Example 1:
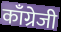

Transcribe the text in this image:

काँग्रेजी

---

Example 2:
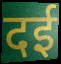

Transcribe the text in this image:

दई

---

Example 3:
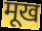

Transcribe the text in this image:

मूख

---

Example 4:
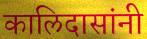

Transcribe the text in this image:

कालिदासांनी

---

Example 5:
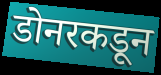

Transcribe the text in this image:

डोनरकडून